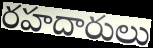
రహదారులు